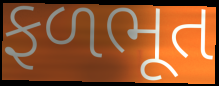
ફળભૂત